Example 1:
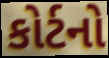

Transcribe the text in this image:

કોર્ટનો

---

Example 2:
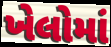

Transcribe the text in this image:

ખેલોમાં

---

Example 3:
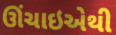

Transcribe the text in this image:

ઊંચાઇએથી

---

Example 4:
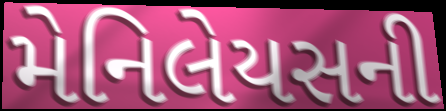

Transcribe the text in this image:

મેનિલેયસની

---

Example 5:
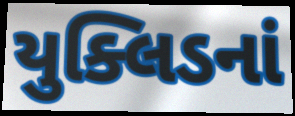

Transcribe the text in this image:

યુક્લિડનાં